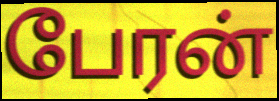
பேரன்